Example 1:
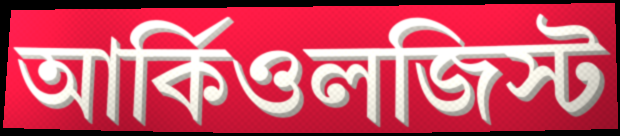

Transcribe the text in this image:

আর্কিওলজিস্ট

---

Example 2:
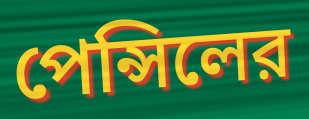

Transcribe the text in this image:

পেন্সিলের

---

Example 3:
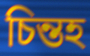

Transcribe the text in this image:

চিন্তহ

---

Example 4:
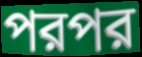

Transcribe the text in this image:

পরপর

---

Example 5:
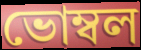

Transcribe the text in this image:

ভোম্বল